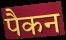
पैकन